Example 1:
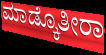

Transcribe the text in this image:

ಮಾಡ್ಕೊತೀರಾ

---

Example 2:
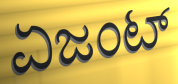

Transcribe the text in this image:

ಏಜಂಟ್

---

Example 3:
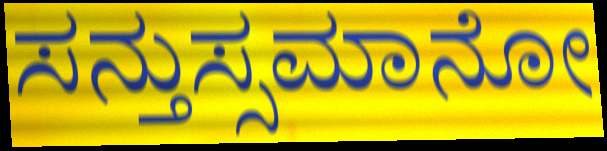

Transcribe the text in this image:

ಸನ್ತುಸ್ಸಮಾನೋ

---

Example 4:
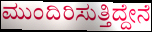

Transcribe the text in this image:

ಮುಂದಿರಿಸುತ್ತಿದ್ದೇನೆ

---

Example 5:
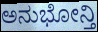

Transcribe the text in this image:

ಅನುಭೋನ್ತಿ